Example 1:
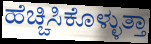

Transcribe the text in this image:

ಹೆಚ್ಚಿಸಿಕೊಳ್ಳುತ್ತಾ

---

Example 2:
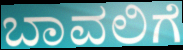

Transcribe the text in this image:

ಬಾವಲಿಗೆ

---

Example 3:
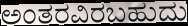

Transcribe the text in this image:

ಅಂತರವಿರಬಹುದು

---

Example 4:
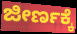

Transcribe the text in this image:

ಜೀರ್ಣಕ್ಕೆ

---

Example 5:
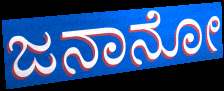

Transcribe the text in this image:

ಜನಾನೋ